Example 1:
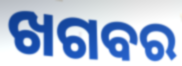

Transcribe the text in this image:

ଖଗବର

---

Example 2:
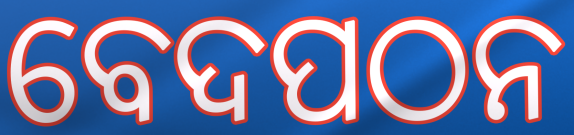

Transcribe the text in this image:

ବେଦପଠନ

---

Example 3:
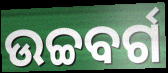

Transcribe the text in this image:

ଉଚ୍ଚବର୍ଗ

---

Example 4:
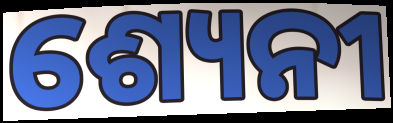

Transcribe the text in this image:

ଶ୍ୟେନୀ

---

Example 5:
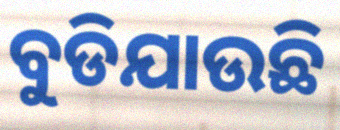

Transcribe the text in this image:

ବୁଡିଯାଉଛି